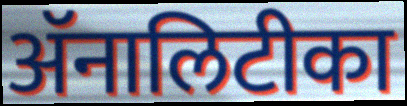
ॲनालिटीका